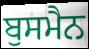
ਬੁਸਮੈਨ